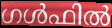
ഗൾഫിൽ